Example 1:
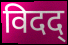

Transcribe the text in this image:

विदद्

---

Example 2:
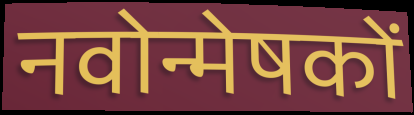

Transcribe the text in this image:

नवोन्‍मेषकों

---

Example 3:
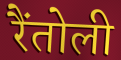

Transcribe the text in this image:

रैंतोली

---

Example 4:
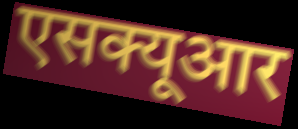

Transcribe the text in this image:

एसक्यूआर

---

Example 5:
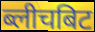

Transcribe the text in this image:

ब्लीचबिट